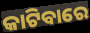
କାଟିବାରେ